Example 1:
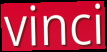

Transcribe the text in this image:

vinci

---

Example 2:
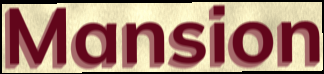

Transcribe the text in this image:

Mansion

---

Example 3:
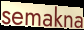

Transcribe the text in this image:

semakna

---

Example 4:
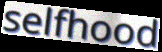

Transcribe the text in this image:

selfhood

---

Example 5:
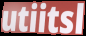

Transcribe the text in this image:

utiitsl